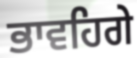
ਭਾਵਹਿਗੇ